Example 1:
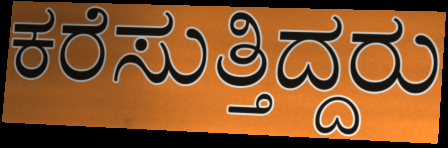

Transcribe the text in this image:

ಕರೆಸುತ್ತಿದ್ದರು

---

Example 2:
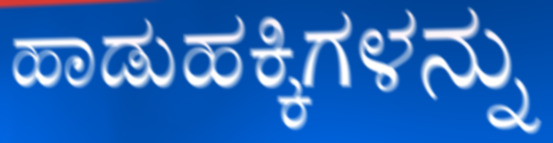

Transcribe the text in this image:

ಹಾಡುಹಕ್ಕಿಗಳನ್ನು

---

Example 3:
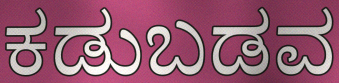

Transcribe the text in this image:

ಕಡುಬಡವ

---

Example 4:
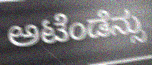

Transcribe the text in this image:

ಅಟೆಂಡೆನ್ಸು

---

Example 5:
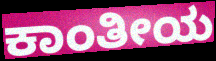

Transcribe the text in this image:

ಕಾಂತೀಯ